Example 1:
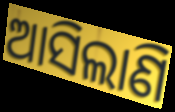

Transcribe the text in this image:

ଆସିଲାଣି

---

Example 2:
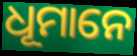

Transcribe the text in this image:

ଧୂମାନେ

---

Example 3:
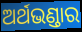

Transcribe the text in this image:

ଅର୍ଥଭଣ୍ଡାର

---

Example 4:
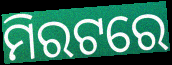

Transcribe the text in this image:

ମିରଟରେ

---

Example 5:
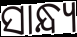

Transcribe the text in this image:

ସାନ୍ଧ୍ୟ